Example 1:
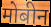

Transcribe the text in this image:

मोबीन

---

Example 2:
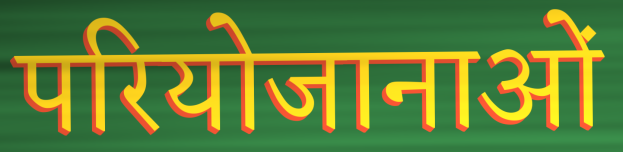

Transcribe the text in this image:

परियोजानाओं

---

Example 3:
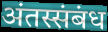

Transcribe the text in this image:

अंतस्संबंध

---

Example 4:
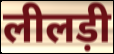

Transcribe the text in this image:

लीलड़ी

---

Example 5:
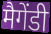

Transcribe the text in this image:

मैगेंडी